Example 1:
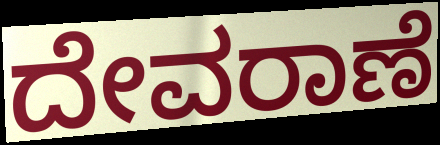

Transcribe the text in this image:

ದೇವರಾಣೆ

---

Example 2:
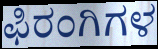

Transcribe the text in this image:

ಫಿರಂಗಿಗಳ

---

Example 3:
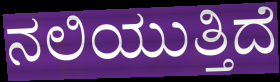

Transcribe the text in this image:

ನಲಿಯುತ್ತಿದೆ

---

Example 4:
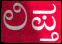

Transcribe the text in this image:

ಲಿಪ್ತ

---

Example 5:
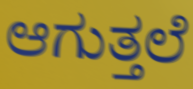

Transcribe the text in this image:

ಆಗುತ್ತಲೆ